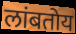
लांबतोय